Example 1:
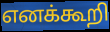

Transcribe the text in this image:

எனக்கூறி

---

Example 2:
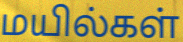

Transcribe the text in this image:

மயில்கள்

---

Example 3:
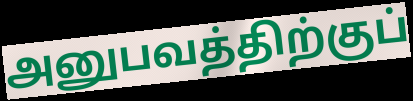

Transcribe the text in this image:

அனுபவத்திற்குப்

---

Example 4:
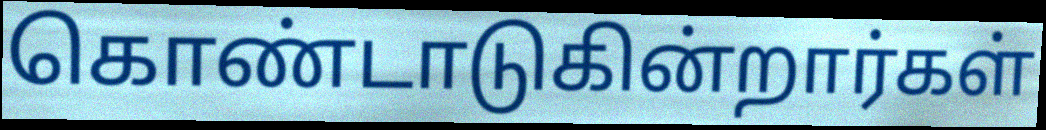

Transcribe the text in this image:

கொண்டாடுகின்றார்கள்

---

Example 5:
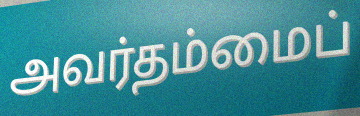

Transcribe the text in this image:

அவர்தம்மைப்